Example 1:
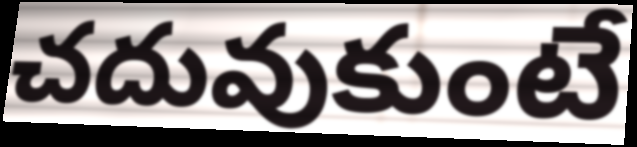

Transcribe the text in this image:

చదువుకుంటే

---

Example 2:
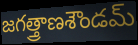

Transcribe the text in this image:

జగత్త్రాణశౌండమ్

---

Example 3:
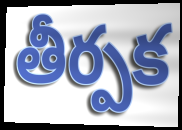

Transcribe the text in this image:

తీర్పక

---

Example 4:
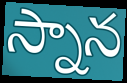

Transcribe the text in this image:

స్నాన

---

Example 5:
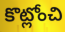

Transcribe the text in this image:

కొట్లోంచి